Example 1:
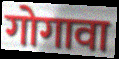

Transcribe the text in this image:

गोगावा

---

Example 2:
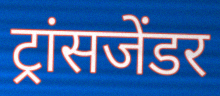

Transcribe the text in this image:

ट्रांसजेंडर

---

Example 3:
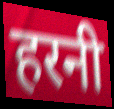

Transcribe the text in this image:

हरनी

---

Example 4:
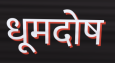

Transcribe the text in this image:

धूमदोष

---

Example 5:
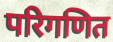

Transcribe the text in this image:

परिगणित